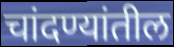
चांदण्यांतील